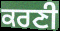
ਕਰਣੀ